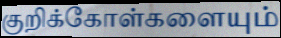
குறிக்கோள்களையும்